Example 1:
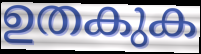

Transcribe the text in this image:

ഉതകുക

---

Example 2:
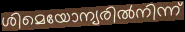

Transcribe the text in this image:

ശിമെയോന്യരിൽനിന്ന്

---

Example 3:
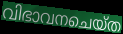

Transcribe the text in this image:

വിഭാവനചെയ്ത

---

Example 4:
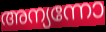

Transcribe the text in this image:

അന്യന്നോ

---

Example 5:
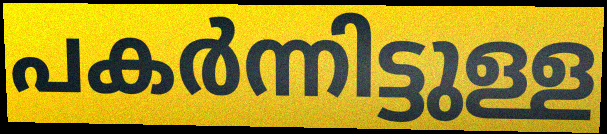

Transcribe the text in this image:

പകർന്നിട്ടുള്ള